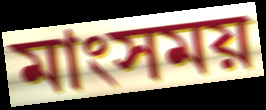
মাংসময়